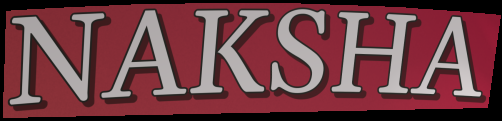
NAKSHA